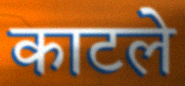
काटले